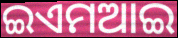
ଇଏମଆଇ